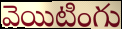
వెయిటింగు